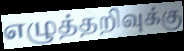
எழுத்தறிவுக்கு